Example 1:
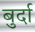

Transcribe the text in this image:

बुर्दा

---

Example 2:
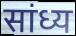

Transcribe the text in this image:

सांध्य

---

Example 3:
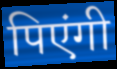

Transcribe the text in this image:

पिएंगी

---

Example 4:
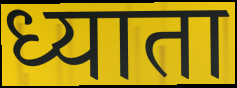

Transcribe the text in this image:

ध्याता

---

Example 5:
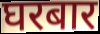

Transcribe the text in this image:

घरबार